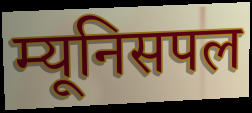
म्यूनिसपल